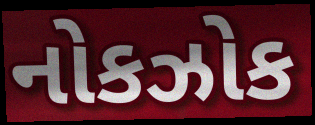
નોકઝોક